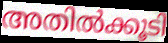
അതിൽക്കൂടി